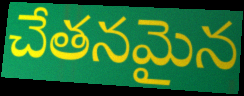
చేతనమైన